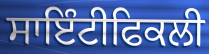
ਸਾਇੰਟੀਫਿਕਲੀ